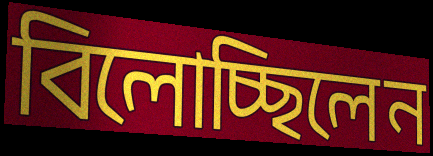
বিলোচ্ছিলেন